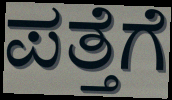
ಪತ್ತೆಗೆ